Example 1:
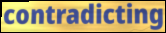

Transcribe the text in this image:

contradicting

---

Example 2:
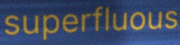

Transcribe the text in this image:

superfluous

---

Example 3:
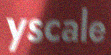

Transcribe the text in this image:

yscale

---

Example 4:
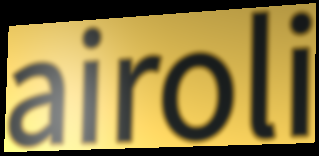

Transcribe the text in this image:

airoli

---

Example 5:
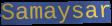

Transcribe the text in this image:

Samaysar